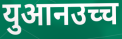
युआनउच्च